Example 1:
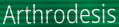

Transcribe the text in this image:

Arthrodesis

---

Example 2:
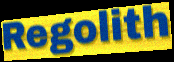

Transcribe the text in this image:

Regolith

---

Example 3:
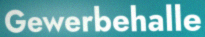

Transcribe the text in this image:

Gewerbehalle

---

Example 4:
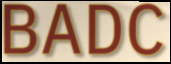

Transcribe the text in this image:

BADC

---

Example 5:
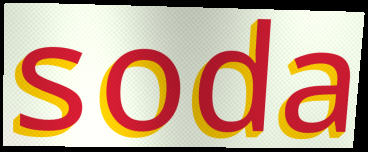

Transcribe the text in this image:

soda